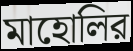
মাহোলির